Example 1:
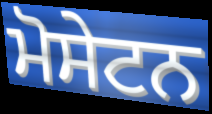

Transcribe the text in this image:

ਮੋਸੇਟਨ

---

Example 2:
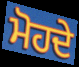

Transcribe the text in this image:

ਮੋਹਦੇ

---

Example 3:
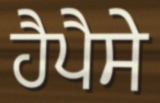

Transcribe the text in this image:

ਹੈਪੈਸੇ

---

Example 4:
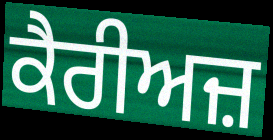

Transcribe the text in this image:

ਕੈਰੀਅਜ਼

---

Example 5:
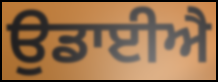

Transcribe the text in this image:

ਉਡਾਈਐ